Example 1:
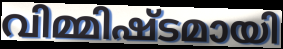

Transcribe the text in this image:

വിമ്മിഷ്ടമായി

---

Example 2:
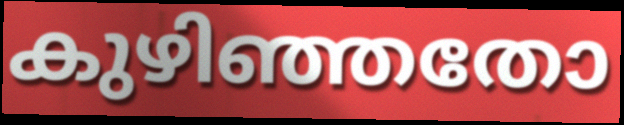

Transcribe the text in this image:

കുഴിഞ്ഞതോ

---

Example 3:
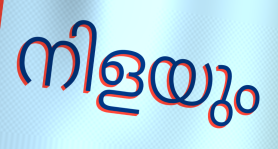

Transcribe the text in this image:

നിളയും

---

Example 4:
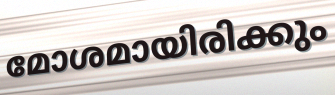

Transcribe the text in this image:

മോശമായിരിക്കും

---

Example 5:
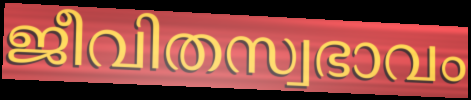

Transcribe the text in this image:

ജീവിതസ്വഭാവം